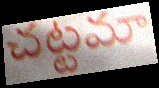
చట్టమా